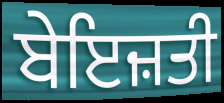
ਬੇਇਜ਼ਤੀ